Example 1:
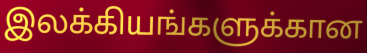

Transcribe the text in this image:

இலக்கியங்களுக்கான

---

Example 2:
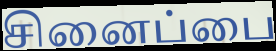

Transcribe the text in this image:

சினைப்பை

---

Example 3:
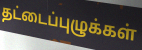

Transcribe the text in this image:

தட்டைப்புழுக்கள்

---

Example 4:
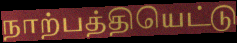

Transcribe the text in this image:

நாற்பத்தியெட்டு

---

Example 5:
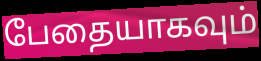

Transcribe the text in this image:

பேதையாகவும்